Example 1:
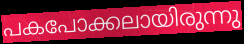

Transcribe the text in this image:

പകപോക്കലായിരുന്നു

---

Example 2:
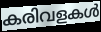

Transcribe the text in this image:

കരിവളകൾ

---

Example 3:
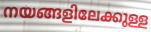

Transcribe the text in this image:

നയങ്ങളിലേക്കുള്ള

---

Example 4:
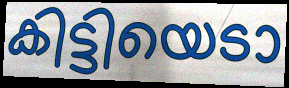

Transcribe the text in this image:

കിട്ടിയെടാ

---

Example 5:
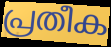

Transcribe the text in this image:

പ്രതീക